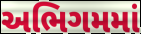
અભિગમમાં